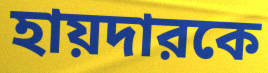
হায়দারকে